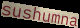
sushumna